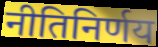
नीतिनिर्णय